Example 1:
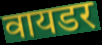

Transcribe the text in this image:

वायडर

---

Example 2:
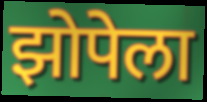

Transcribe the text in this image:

झोपेला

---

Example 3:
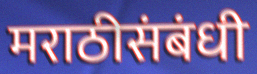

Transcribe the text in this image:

मराठीसंबंधी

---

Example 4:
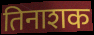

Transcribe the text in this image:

तिनाशक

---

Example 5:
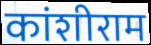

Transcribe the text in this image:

कांशीराम